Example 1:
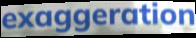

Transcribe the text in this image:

exaggeration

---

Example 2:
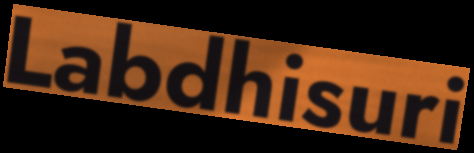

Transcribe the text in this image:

Labdhisuri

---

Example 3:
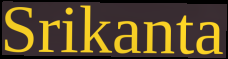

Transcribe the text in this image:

Srikanta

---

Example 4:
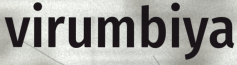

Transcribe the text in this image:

virumbiya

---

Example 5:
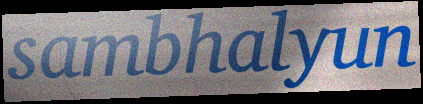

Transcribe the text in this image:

sambhalyun